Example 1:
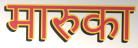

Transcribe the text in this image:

मारुका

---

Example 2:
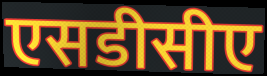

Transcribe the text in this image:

एसडीसीए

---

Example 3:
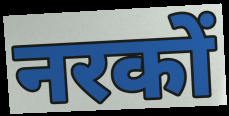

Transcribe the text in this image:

नरकों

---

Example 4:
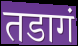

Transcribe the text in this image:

तडागं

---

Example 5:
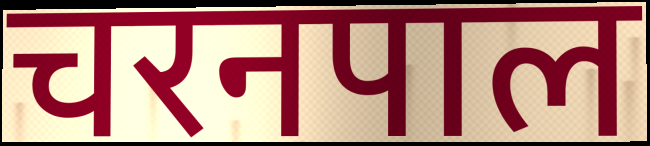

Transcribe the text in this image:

चरनपाल